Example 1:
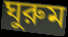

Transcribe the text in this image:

ঘুরুম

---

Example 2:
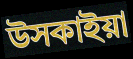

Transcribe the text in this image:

উসকাইয়া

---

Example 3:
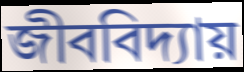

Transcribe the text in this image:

জীববিদ্যায়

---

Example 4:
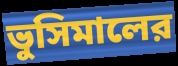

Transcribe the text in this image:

ভুসিমালের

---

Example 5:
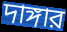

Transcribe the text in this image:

দাঙ্গার